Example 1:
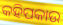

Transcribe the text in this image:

କହିପକାଉ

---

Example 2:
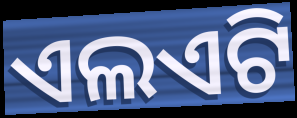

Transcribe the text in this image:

ଏଲଏଟି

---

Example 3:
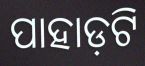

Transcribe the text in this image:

ପାହାଡ଼ଟି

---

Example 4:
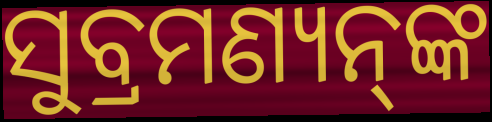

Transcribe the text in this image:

ସୁବ୍ରମଣ୍ୟନ୍‌ଙ୍କ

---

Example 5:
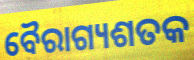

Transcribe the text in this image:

ବୈରାଗ୍ୟଶତକ